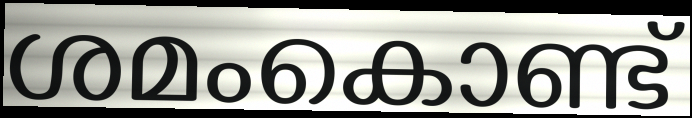
ശമംകൊണ്ട്